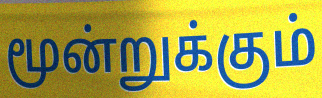
மூன்றுக்கும்